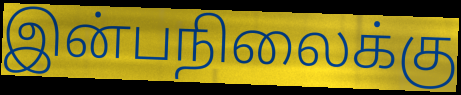
இன்பநிலைக்கு